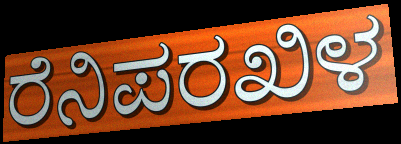
ರೆನಿಪರಖಿಳ